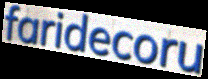
faridecoru